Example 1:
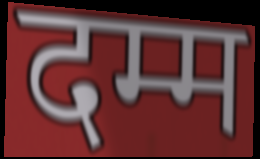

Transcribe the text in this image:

दम्म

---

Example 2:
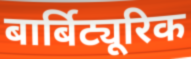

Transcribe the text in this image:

बार्बिट्यूरिक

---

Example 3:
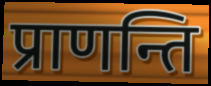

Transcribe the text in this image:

प्राणन्ति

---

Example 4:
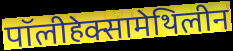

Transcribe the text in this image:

पॉलीहेक्सामेथिलीन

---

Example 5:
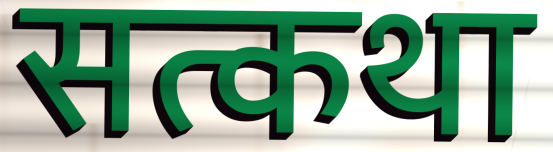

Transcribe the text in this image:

सत्कथा